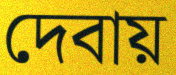
দেবায়